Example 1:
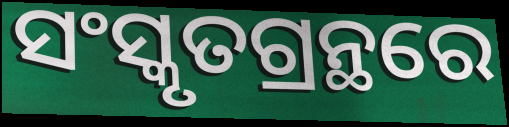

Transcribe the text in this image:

ସଂସ୍କୃତଗ୍ରନ୍ଥରେ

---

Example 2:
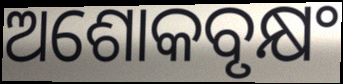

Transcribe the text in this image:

ଅଶୋକବୃକ୍ଷଂ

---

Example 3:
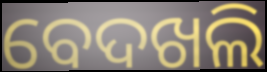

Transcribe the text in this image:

ବେଦଖଲି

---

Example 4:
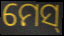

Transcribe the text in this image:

ମେସ୍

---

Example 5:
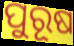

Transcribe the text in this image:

ପୁରୂଷ